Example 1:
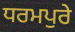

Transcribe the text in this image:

ਧਰਮਪੁਰੇ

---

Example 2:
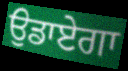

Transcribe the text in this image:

ਉਡਾਏਗਾ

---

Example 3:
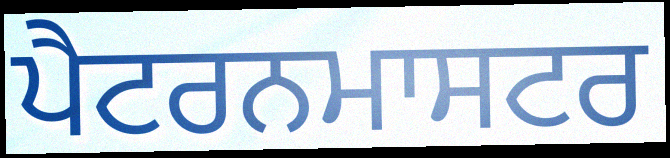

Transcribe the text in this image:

ਪੈਟਰਨਮਾਸਟਰ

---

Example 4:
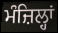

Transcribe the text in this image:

ਮੰਜ਼ਿਲ੍ਹਾਂ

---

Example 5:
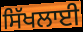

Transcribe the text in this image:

ਸਿੱਖਲਾਈ